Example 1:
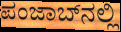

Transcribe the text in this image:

ಪಂಜಾಬ್‌ನಲ್ಲಿ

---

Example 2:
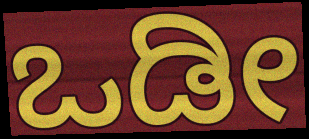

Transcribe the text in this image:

ಒಡೀ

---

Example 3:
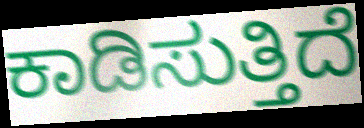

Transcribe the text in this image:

ಕಾಡಿಸುತ್ತಿದೆ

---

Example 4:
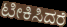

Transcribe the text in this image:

ಟೀಕಿಸಿದರೆ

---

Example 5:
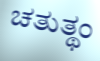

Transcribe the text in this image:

ಚತುತ್ಥಂ